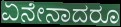
ಏನೇನಾದರೂ